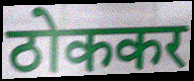
ठोककर